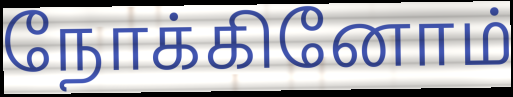
நோக்கினோம்